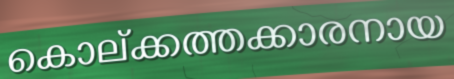
കൊല്ക്കത്തക്കാരനായ